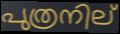
പുത്രനില്